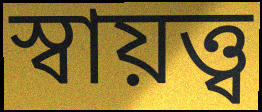
স্বায়ত্ত্ব